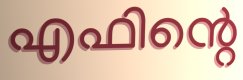
എഫിന്റെ